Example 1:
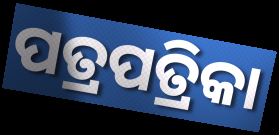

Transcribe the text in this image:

ପତ୍ରପତ୍ରିକା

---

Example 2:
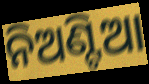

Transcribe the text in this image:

ନିଅଣ୍ଟିଆ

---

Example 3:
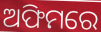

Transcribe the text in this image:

ଅଫିମରେ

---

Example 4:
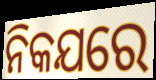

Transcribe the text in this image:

ନିକଯରେ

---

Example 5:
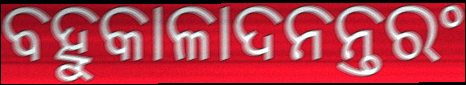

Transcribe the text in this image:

ବହୁକାଳାଦନନ୍ତରଂ